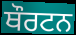
ਥੌਰਟਨ